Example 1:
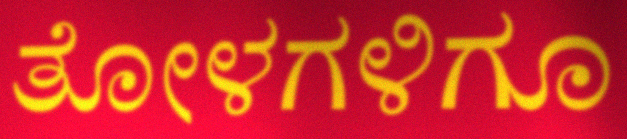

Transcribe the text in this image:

ತೋಳಗಳಿಗೂ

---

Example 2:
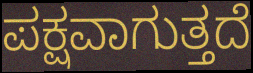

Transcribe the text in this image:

ಪಕ್ಷವಾಗುತ್ತದೆ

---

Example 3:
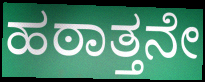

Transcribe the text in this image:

ಹಠಾತ್ತನೇ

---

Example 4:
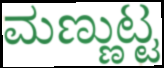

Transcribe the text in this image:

ಮಣ್ಣುಟ್ಟ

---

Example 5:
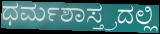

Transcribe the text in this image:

ಧರ್ಮಶಾಸ್ತ್ರದಲ್ಲಿ